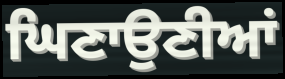
ਘਿਣਾਉਣੀਆਂ